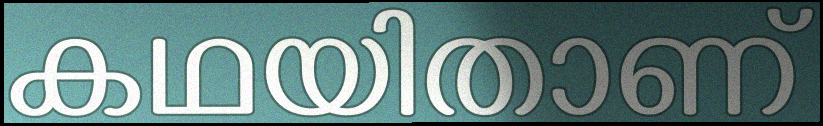
കഥയിതാണ്